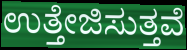
ಉತ್ತೇಜಿಸುತ್ತವೆ